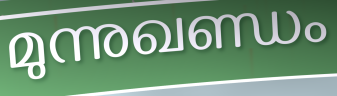
മുന്നുഖണ്ഡം